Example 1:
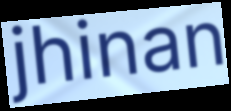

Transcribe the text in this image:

jhinan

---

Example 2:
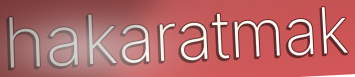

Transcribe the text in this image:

hakaratmak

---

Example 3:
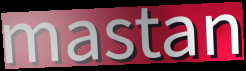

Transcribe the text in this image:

mastan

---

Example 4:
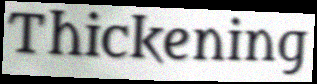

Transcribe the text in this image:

Thickening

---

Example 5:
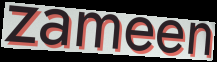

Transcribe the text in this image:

zameen